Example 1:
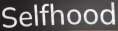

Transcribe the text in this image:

Selfhood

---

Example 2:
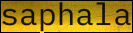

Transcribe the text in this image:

saphala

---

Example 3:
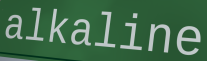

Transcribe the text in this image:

alkaline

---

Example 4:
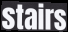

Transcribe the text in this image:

stairs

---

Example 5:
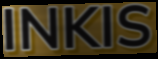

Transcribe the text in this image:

INKIS